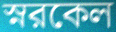
স্নরকেল